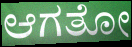
ಆಗತೋ